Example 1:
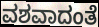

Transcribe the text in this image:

ವಶವಾದಂತೆ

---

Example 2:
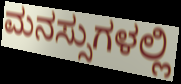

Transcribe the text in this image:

ಮನಸ್ಸುಗಳಲ್ಲಿ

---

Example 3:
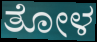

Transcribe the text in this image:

ತೋಳ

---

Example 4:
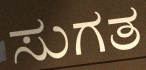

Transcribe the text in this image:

ಸುಗತ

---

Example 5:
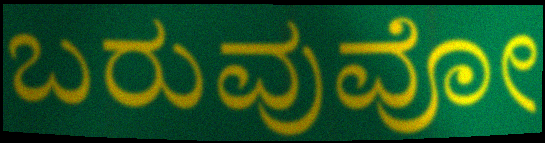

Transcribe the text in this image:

ಬರುವುವೋ